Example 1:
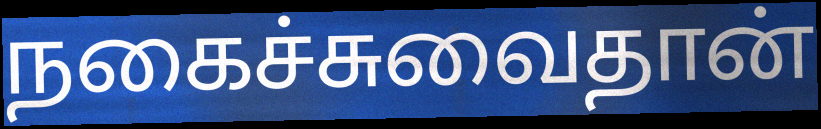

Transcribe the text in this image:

நகைச்சுவைதான்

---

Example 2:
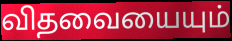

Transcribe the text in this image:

விதவையையும்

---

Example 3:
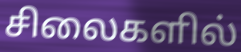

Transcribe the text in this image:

சிலைகளில்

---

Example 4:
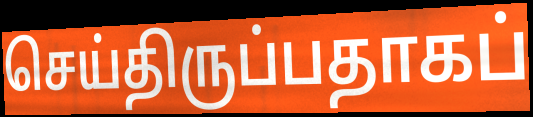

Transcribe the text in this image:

செய்திருப்பதாகப்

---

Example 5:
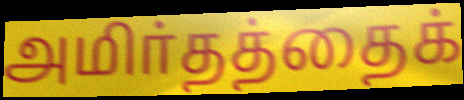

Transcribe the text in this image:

அமிர்தத்தைக்